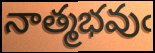
నాత్మభవుఁ